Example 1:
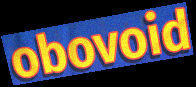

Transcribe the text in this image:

obovoid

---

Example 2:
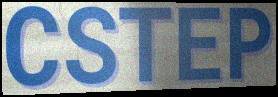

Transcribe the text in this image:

CSTEP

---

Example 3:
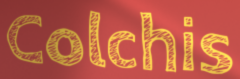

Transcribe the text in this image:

Colchis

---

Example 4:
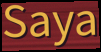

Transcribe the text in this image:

Saya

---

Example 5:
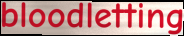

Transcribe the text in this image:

bloodletting